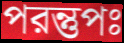
পরন্তুপঃ